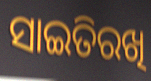
ସାଇତିରଖି